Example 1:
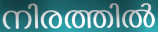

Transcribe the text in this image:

നിരത്തിൽ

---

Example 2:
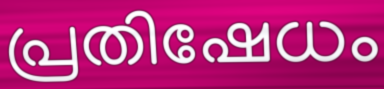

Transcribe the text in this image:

പ്രതിഷേധം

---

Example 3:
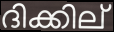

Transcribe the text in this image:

ദിക്കില്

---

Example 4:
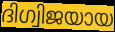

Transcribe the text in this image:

ദിഗ്വിജയായ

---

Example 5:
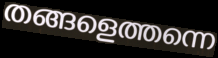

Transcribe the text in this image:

തങ്ങളെത്തന്നെ